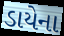
ડાયેના